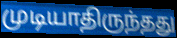
முடியாதிருந்தது